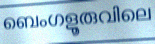
ബെംഗളൂരുവിലെ